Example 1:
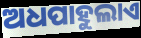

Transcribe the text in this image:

ଅଧପାହୁଲାଏ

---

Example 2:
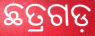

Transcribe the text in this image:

ଛତ୍ରଗଡ଼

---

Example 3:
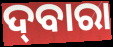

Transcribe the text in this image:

ଦ୍‌ବାରା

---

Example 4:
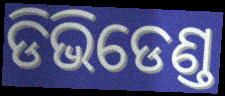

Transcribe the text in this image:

ଡିଭିଡେଣ୍ଡ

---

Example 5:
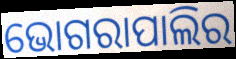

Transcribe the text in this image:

ଭୋଗରାପାଲିର